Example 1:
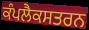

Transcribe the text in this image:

ਕੰਪਲੈਕਸਤਰਨ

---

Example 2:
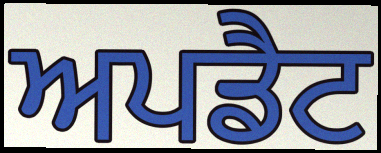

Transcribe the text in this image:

ਅਪਡੈਟ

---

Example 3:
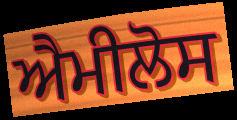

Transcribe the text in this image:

ਐਮੀਲੋਸ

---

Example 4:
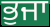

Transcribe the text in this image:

ਭੁਜਾ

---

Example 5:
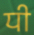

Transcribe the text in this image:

ਧੀ